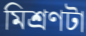
মিশ্রণটা